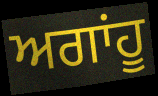
ਅਗਾਂਹੂ